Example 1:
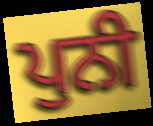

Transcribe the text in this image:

ਪੁਨੀ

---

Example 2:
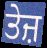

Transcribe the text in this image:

ਤੇਜ਼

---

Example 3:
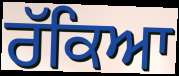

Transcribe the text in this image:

ਰੱਕਿਆ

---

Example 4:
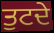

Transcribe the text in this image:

ਤੁਟਦੇ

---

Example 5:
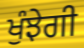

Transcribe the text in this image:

ਖੁੰਝੇਗੀ